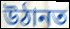
উঠানত